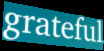
grateful